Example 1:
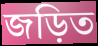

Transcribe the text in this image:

জড়িত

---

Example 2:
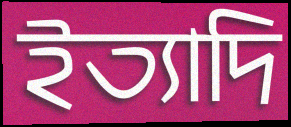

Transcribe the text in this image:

ইত্যাদি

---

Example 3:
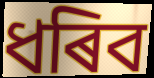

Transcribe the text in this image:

ধৰিব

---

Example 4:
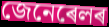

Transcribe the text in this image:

জেনেৰেলৰ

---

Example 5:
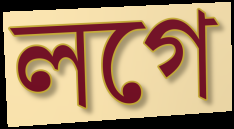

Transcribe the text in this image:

লগে